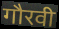
गौरवी